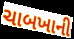
ચાબખાની